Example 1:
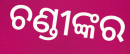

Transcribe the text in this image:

ଚଣ୍ଡୀଙ୍କର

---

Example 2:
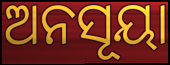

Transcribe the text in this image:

ଅନସୂୟା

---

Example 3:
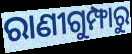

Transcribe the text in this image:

ରାଣୀଗୁମ୍ଫାରୁ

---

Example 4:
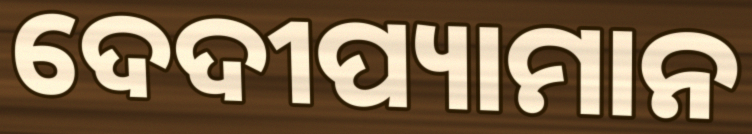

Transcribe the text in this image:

ଦେଦୀପ୍ୟାମାନ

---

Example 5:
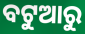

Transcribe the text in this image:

ବଟୁଆରୁ